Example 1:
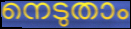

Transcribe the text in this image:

നെടുതാം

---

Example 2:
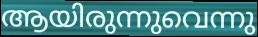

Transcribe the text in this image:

ആയിരുന്നുവെന്നു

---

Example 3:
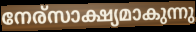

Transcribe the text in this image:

നേര്സാക്ഷ്യമാകുന്നു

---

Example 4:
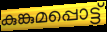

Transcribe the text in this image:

കുങ്കുമപ്പൊട്ട്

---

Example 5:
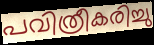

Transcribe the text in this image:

പവിത്രീകരിച്ചു